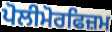
ਪੋਲੀਮੋਰਫਿਜ਼ਮ